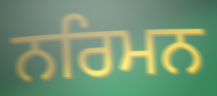
ਨਰਿਮਨ